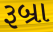
રૂબ્રા